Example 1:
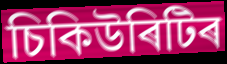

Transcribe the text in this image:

চিকিউৰিটিৰ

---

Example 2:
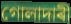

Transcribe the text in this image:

গোলাদাৰী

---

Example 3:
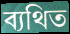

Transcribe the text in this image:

ব্যথিত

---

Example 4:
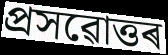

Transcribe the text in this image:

প্ৰসৱোত্তৰ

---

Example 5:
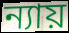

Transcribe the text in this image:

ন্যায়